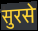
सुरसे